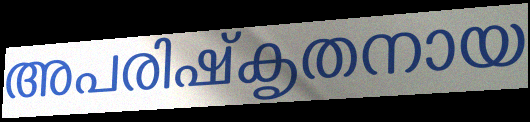
അപരിഷ്‌കൃതനായ